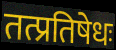
तत्प्रतिषेधः